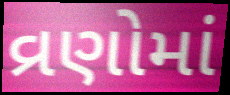
વ્રણોમાં